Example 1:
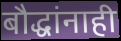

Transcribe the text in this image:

बौद्धांनाही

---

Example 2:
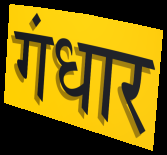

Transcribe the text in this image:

गंधार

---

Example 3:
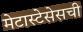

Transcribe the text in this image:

मेटास्टेसेसची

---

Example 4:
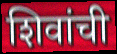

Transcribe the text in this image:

शिवांची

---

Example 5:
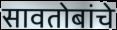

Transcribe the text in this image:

सावतोबांचे